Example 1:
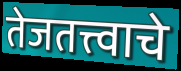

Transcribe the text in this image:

तेजतत्त्वाचे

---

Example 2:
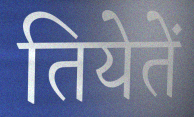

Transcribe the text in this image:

तियेतें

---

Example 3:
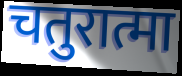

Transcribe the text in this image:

चतुरात्मा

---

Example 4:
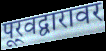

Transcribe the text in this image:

पूर्वद्वारावर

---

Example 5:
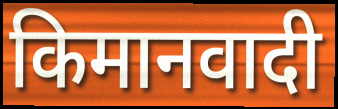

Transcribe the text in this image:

किमानवादी